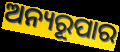
ଅନ୍ୟରୂପାର